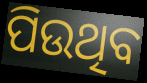
ପିଉଥିବ